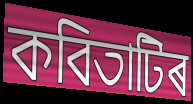
কবিতাটিৰ